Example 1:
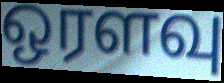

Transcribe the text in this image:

ஒரளவு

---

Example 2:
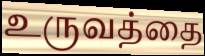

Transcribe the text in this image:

உருவத்தை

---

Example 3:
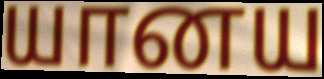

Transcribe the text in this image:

யானய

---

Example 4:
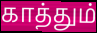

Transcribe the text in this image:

காத்தும்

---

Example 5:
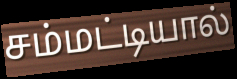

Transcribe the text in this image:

சம்மட்டியால்